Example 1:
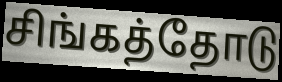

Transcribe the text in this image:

சிங்கத்தோடு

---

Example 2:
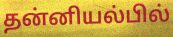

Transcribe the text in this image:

தன்னியல்பில்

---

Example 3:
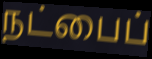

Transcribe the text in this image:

நட்பைப்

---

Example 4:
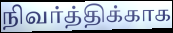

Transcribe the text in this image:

நிவர்த்திக்காக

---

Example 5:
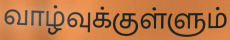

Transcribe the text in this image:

வாழ்வுக்குள்ளும்